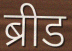
ब्रीड